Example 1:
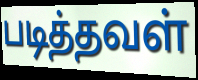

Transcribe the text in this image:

படித்தவள்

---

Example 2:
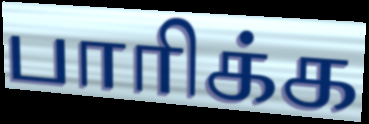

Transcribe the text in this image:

பாரிக்க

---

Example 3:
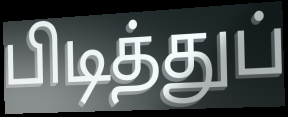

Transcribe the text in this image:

பிடித்துப்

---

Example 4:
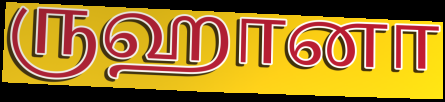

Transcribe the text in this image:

ருஹானா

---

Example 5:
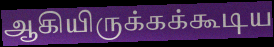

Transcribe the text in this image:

ஆகியிருக்கக்கூடிய